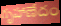
గృహాణేదం